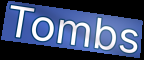
Tombs